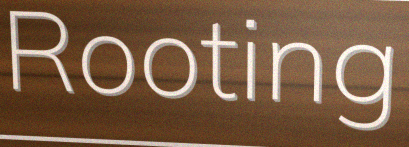
Rooting